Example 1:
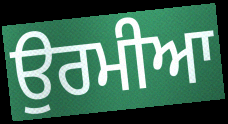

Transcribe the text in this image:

ਉਰਮੀਆ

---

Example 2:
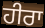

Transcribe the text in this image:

ਹੀਰਾ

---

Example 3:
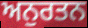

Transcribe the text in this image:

ਅਨੁਰਤਨ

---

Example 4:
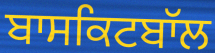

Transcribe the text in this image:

ਬਾਸਕਿਟਬਾੱਲ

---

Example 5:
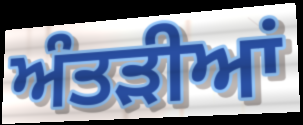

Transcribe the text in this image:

ਅੰਤੜੀਆਂ